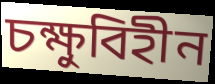
চক্ষুবিহীন